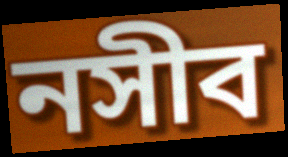
নসীব